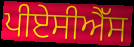
ਪੀਏਸੀਐੱਸ